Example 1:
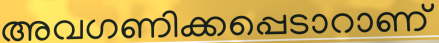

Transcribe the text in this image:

അവഗണിക്കപ്പെടാറാണ്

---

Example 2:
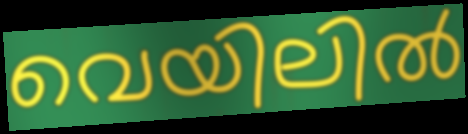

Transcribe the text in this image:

വെയിലിൽ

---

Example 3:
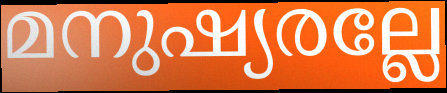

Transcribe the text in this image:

മനുഷ്യരല്ലേ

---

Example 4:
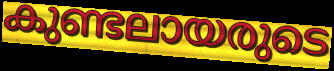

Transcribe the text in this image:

കുണ്ടലായരുടെ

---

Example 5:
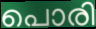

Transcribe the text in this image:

പൊരി